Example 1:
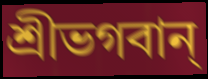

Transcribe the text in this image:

শ্রীভগবান্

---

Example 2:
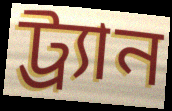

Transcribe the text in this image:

ট্র্যান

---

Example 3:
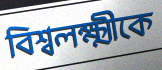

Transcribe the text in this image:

বিশ্বলক্ষ্মীকে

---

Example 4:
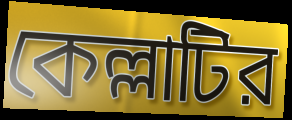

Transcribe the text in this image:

কেল্লাটির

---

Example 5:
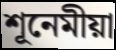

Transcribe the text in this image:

শূনেমীয়া